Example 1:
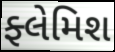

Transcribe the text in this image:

ફ્લેમિશ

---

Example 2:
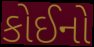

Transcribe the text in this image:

કોઈનો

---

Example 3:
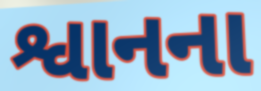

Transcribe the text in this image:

શ્વાનના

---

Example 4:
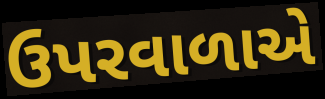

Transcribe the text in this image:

ઉપરવાળાએ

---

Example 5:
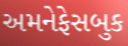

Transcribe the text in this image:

અમનેફેસબુક